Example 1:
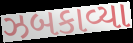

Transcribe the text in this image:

ઝબકાવ્યા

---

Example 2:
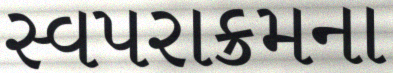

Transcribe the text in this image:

સ્વપરાક્રમના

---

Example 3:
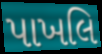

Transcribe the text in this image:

પાખલિ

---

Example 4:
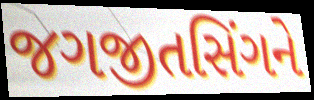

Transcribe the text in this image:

જગજીતસિંગને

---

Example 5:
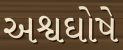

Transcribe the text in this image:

અશ્વઘોષે